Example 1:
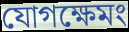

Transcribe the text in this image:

যোগক্ষেমং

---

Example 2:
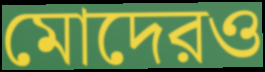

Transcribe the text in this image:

মোদেরও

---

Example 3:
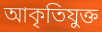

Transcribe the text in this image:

আকৃতিযুক্ত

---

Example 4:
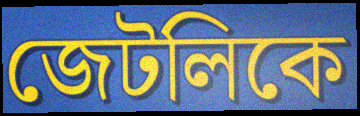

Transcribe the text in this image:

জেটলিকে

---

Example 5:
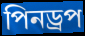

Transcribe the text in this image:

পিনড্রপ